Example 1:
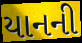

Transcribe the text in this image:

યાનની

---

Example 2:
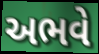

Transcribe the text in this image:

અભવે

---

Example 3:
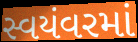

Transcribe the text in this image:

સ્વયંવરમાં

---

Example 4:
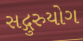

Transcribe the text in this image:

સદ્ગુરુયોગ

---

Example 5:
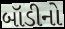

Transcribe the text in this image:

બૉડીનો